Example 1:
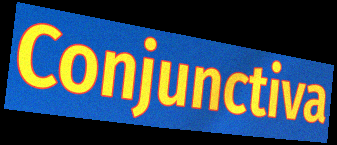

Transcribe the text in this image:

Conjunctiva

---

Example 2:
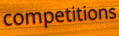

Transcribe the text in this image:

competitions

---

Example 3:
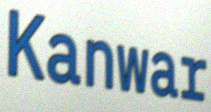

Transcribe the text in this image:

Kanwar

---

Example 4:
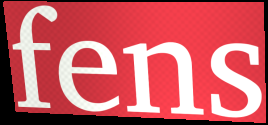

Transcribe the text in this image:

fens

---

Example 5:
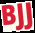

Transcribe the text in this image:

BJJ